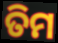
ତିମ